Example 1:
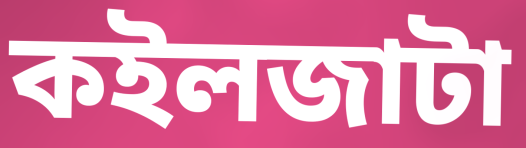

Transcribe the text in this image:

কইলজাটা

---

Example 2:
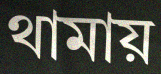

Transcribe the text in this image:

থামায়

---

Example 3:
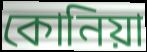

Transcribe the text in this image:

কোনিয়া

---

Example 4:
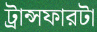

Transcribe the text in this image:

ট্রান্সফারটা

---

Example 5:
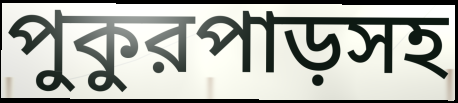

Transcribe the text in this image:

পুকুরপাড়সহ